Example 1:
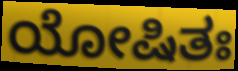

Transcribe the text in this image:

ಯೋಷಿತಃ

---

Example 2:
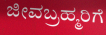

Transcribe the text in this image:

ಜೀವಬ್ರಹ್ಮರಿಗೆ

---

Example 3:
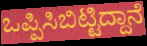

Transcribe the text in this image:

ಒಪ್ಪಿಸಿಬಿಟ್ಟಿದ್ದಾನೆ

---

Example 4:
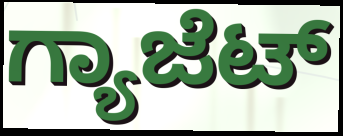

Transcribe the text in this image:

ಗ್ಯಾಜೆಟ್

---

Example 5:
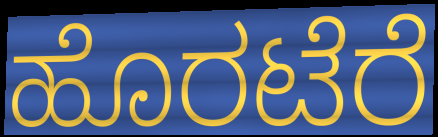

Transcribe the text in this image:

ಹೊರಟೆರೆ